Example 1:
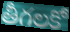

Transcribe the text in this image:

తీగలకో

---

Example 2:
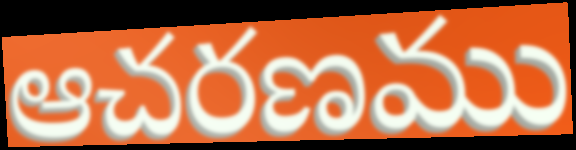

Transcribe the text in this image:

ఆచరణము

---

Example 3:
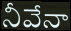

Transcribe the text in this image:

నీవేనా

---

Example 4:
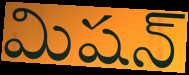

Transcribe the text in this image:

మిషన్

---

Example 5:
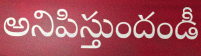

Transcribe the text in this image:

అనిపిస్తుందండీ